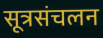
सूत्रसंचलन